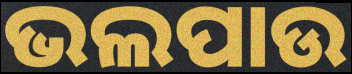
ଭଲପାଉ